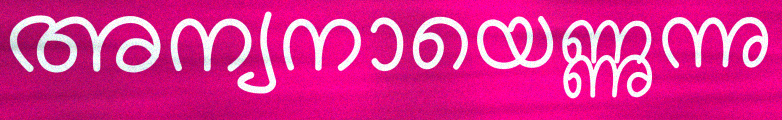
അന്യനായെണ്ണുന്നു